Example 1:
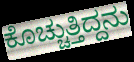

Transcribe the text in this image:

ಕೊಚ್ಚುತ್ತಿದ್ದನು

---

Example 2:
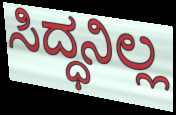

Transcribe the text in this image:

ಸಿದ್ಧನಿಲ್ಲ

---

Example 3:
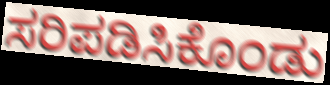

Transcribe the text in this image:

ಸರಿಪಡಿಸಿಕೊಂಡು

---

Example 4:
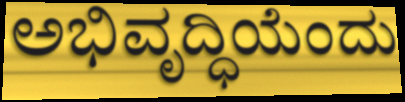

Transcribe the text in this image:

ಅಭಿವೃದ್ಧಿಯೆಂದು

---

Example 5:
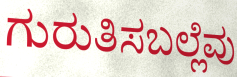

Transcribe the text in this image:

ಗುರುತಿಸಬಲ್ಲೆವು